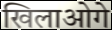
खिलाओगे